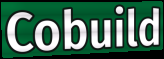
Cobuild